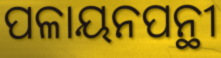
ପଳାୟନପନ୍ଥୀ